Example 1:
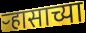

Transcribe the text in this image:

ऱ्हासाच्या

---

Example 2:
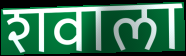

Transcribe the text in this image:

शवाला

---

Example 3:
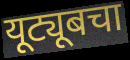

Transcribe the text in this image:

यूट्यूबचा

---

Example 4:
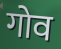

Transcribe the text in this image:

गोव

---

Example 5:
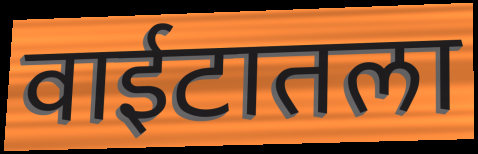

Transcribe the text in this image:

वाईटातला